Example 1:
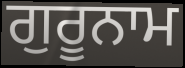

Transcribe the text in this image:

ਗੁਰੂਨਾਮ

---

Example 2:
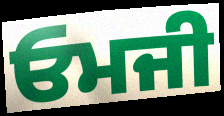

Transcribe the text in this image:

ਓਮਜੀ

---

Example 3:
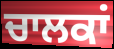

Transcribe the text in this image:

ਚਾਲਕਾਂ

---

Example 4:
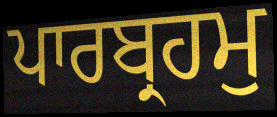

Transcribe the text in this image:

ਪਾਰਬ੍ਰਹਮੁ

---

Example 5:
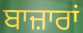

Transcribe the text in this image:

ਬਾਜ਼ਾਰਾਂ